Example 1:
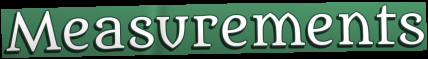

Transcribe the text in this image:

Measurements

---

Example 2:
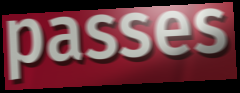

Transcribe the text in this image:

passes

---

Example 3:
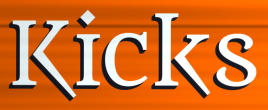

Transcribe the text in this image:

Kicks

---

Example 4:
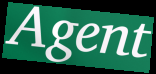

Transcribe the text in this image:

Agent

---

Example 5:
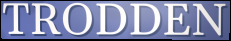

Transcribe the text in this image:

TRODDEN